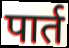
पार्त